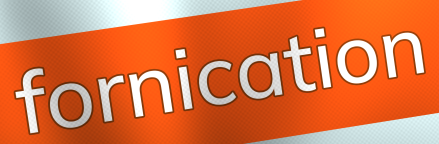
fornication